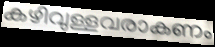
കഴിവുള്ളവരാകണം